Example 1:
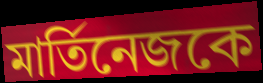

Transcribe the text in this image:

মার্তিনেজকে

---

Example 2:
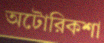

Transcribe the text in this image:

অটোরিকশা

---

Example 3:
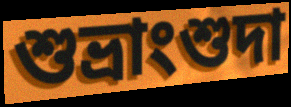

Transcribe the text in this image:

শুভ্রাংশুদা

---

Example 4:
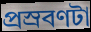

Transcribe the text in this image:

প্রস্রবণটা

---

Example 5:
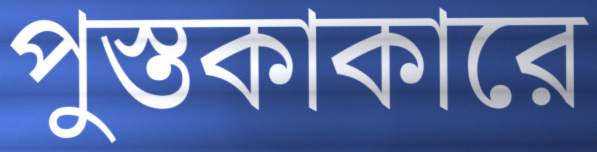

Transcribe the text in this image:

পুস্তকাকারে